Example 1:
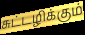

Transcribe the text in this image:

சுட்டழிக்கும்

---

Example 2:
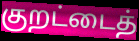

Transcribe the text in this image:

குறட்டைத்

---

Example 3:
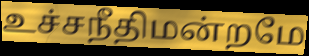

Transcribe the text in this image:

உச்சநீதிமன்றமே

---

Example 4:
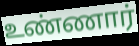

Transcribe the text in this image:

உண்ணார்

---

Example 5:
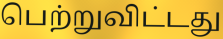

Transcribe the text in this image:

பெற்றுவிட்டது